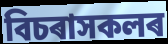
বিচৰাসকলৰ